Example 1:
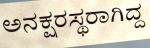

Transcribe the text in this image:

ಅನಕ್ಷರಸ್ಥರಾಗಿದ್ದ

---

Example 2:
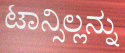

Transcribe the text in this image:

ಟಾನ್ಸಿಲ್ಲನ್ನು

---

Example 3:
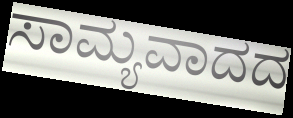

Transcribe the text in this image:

ಸಾಮ್ಯವಾದದ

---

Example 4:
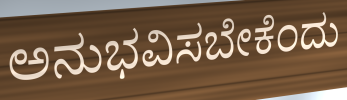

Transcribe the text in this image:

ಅನುಭವಿಸಬೇಕೆಂದು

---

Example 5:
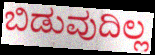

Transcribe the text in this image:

ಬಿಡುವುದಿಲ್ಲ